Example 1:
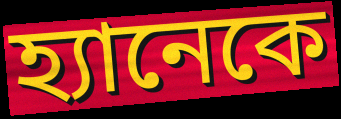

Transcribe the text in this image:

হ্যানেকে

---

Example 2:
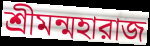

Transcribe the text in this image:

শ্রীমন্মহারাজ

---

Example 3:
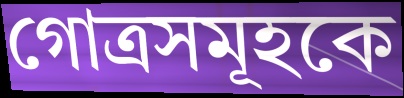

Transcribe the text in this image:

গোত্রসমূহকে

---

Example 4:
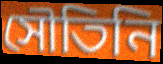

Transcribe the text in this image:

সৌতিনি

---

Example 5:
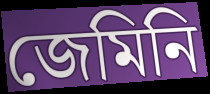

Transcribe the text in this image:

জেমিনি